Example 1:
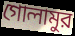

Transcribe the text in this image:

গোলামুর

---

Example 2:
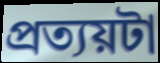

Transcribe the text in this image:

প্রত্যয়টা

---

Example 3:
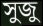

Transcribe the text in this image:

সুজু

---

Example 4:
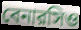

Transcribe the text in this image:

বেনারসিও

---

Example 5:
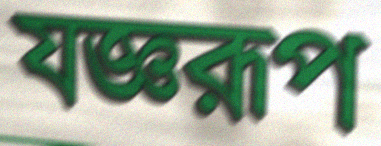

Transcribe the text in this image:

যজ্ঞরূপ